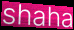
shaha